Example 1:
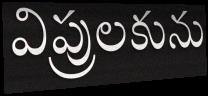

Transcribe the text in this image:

విప్రులకును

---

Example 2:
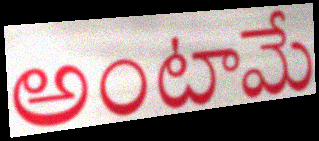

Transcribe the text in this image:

అంటామే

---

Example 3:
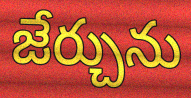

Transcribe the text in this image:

జేర్చును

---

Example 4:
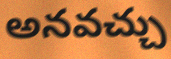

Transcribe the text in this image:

అనవచ్చు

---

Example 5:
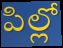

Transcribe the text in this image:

పిల్లో